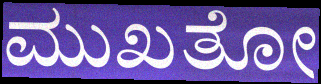
ಮುಖತೋ